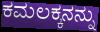
ಕಮಲಕ್ಕನನ್ನು